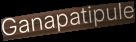
Ganapatipule